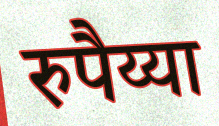
रुपैय्या